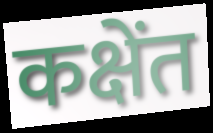
कक्षेंत